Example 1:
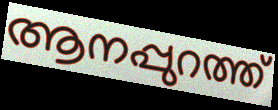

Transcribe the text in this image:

ആനപ്പുറത്ത്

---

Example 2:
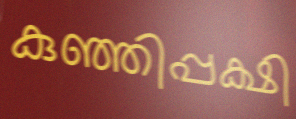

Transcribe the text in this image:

കുഞ്ഞിപ്പക്ഷി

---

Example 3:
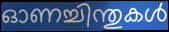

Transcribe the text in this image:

ഓണച്ചിന്തുകൾ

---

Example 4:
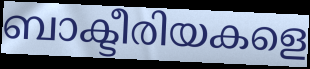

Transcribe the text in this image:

ബാക്ടീരിയകളെ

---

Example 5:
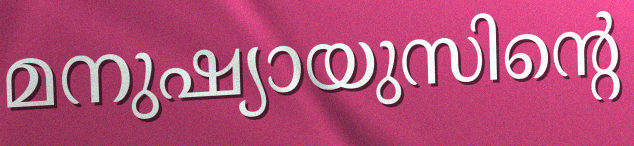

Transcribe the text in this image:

മനുഷ്യായുസിന്റെ